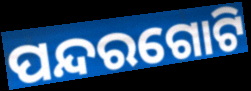
ପନ୍ଦରଗୋଟି